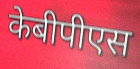
केबीपीएस